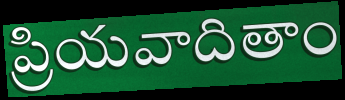
ప్రియవాదితాం